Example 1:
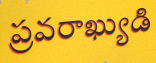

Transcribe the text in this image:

ప్రవరాఖ్యుడి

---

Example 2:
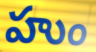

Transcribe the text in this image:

హుం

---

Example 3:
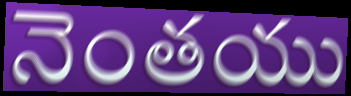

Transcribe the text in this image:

నెంతయు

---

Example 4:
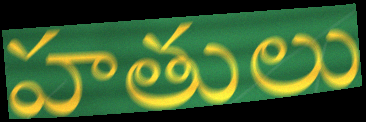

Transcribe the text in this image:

హతులు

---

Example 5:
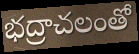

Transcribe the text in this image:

భద్రాచలంతో